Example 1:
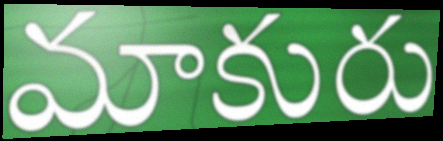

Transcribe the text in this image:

మాకురు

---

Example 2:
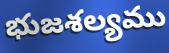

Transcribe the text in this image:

భుజశల్యము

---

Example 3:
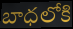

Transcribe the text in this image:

బాధలోకి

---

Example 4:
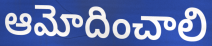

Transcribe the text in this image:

ఆమోదించాలి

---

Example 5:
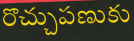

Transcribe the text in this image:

రొచ్చుపణుకు